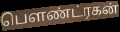
பௌண்ட்ரகன்